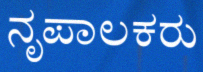
ನೃಪಾಲಕರು